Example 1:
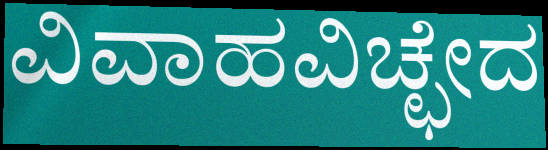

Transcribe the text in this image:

ವಿವಾಹವಿಚ್ಛೇದ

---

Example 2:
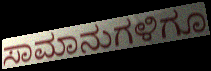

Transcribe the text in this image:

ಸಾಮಾನುಗಳಿಗೂ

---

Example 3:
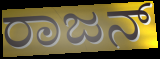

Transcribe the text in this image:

ರಾಜನ್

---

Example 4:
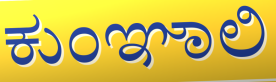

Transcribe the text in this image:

ಕುಂಞಾಲಿ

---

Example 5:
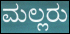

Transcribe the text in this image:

ಮಲ್ಲರು